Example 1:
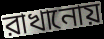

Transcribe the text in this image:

রাখানোয়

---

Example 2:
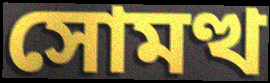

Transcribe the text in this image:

সোমত্থ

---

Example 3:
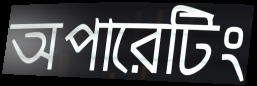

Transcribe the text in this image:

অপারেটিং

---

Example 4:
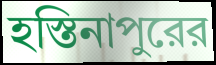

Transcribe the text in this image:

হস্তিনাপুরের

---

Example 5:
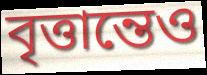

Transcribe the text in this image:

বৃত্তান্তেও